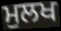
ਮੁਲਖ